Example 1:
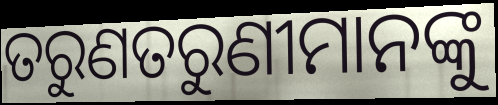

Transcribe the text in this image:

ତରୁଣତରୁଣୀମାନଙ୍କୁ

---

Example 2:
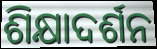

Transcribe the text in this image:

ଶିକ୍ଷାଦର୍ଶନ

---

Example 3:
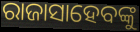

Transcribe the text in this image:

ରାଜାସାହେବଙ୍କୁ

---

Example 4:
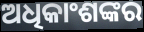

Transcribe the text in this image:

ଅଧିକାଂଶଙ୍କର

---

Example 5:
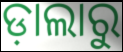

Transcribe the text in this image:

ଡ଼ାଲାରୁ